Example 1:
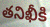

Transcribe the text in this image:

తనిఖీకి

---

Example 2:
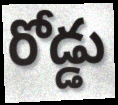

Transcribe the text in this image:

రోడ్డు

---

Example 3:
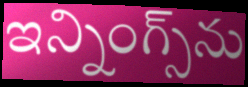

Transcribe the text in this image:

ఇన్నింగ్స్‌ను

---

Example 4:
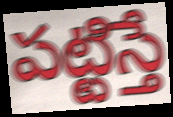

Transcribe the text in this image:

పట్టిస్తే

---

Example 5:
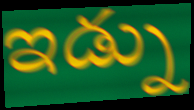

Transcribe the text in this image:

ఇడ్ను